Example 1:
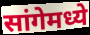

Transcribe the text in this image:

सांगेमध्ये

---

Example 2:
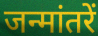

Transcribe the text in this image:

जन्मांतरें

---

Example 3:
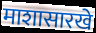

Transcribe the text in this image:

माशासारखे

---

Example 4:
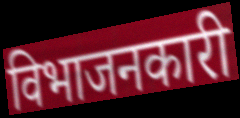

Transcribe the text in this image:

विभाजनकारी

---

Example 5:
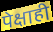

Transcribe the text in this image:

पेक्षाही